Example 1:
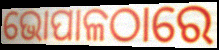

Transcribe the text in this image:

ଭୋପାଳଠାରେ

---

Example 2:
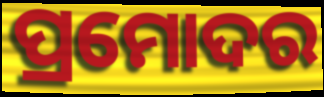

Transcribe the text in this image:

ପ୍ରମୋଦର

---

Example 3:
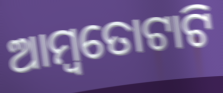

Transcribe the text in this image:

ଆମ୍ବତୋଟାଟି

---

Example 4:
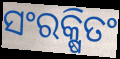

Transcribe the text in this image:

ସଂରକ୍ଷିତଂ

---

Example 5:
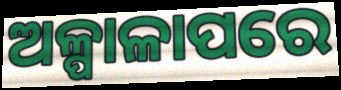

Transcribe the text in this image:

ଅଳ୍ପାଳାପରେ